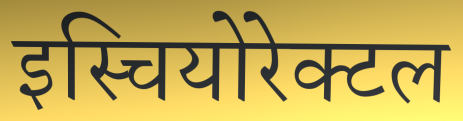
इस्चियोरेक्टल